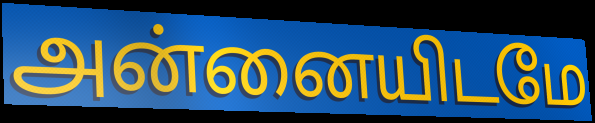
அன்னையிடமே